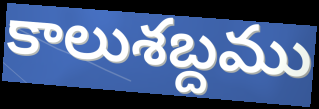
కాలుశబ్దము